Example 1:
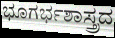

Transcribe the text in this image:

ಭೂಗರ್ಭಶಾಸ್ತ್ರದ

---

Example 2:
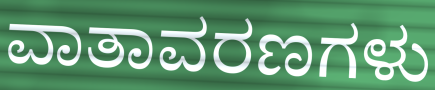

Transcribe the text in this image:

ವಾತಾವರಣಗಳು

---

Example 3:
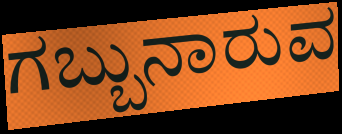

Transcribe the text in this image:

ಗಬ್ಬುನಾರುವ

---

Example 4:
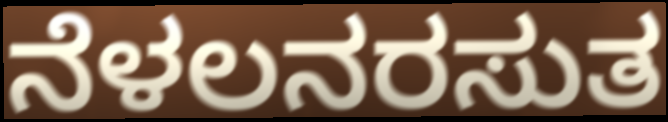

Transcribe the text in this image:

ನೆಳಲನರಸುತ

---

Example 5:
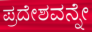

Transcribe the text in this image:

ಪ್ರದೇಶವನ್ನೇ